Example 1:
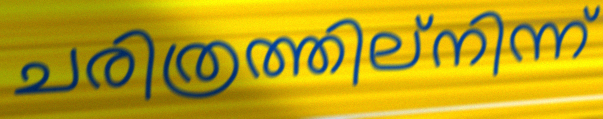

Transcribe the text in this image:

ചരിത്രത്തില്നിന്ന്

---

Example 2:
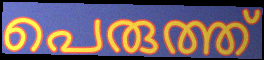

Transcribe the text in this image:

പെരുത്ത്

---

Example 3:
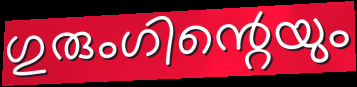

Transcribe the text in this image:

ഗുരുംഗിന്റെയും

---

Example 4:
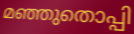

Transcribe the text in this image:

മഞ്ഞുതൊപ്പി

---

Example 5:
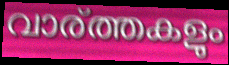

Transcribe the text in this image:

വാര്ത്തകളും